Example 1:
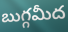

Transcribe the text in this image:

బుగ్గమీద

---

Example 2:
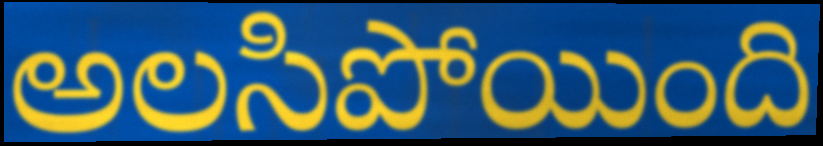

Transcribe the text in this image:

అలసిపోయింది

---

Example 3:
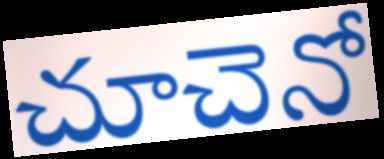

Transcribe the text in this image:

చూచెనో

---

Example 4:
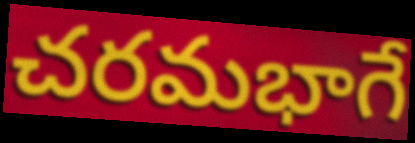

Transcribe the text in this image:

చరమభాగే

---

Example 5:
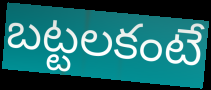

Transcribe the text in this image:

బట్టలకంటే